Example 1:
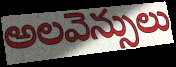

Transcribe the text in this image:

అలవెన్సులు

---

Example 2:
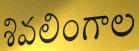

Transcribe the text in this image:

శివలింగాల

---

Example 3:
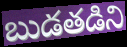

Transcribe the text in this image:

బుడతడిని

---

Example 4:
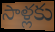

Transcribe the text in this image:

సాళ్లకు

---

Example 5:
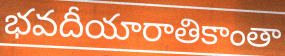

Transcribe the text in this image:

భవదీయారాతికాంతా